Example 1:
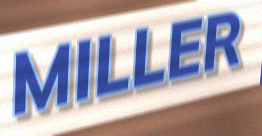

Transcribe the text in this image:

MILLER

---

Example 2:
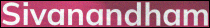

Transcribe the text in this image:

Sivanandham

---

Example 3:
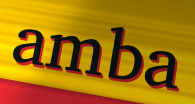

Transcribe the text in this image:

amba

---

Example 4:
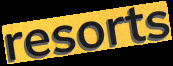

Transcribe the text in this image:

resorts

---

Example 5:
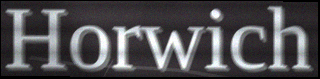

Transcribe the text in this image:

Horwich